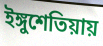
ইঙ্গুশেতিয়ায়